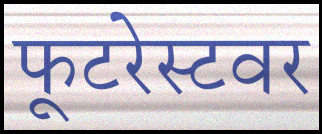
फूटरेस्टवर